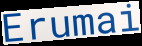
Erumai